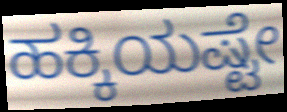
ಹಕ್ಕಿಯಷ್ಟೇ